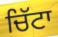
ਚਿੱਟਾ